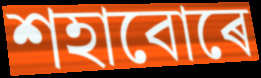
শহাবোৰে